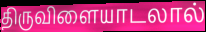
திருவிளையாடலால்